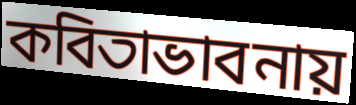
কবিতাভাবনায়